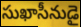
సుఖాసీనుడై